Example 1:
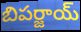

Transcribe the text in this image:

బిపర్జాయ్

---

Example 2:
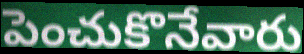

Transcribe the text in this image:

పెంచుకొనేవారు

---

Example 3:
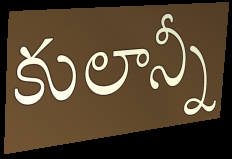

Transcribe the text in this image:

కులాన్నీ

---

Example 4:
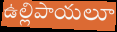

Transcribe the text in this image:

ఉల్లిపాయలూ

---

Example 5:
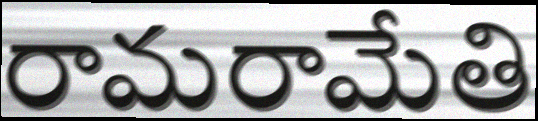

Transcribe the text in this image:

రామరామేతి